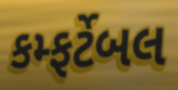
કમ્ફર્ટેબલ